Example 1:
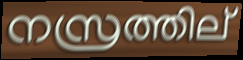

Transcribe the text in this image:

നസ്രത്തില്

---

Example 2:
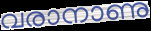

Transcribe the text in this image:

വരാനാണു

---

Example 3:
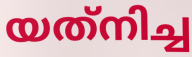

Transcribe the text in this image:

യത്‌നിച്ച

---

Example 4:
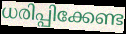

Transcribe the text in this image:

ധരിപ്പിക്കേണ്ട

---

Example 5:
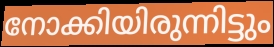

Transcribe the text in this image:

നോക്കിയിരുന്നിട്ടും